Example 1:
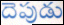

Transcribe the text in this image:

దెపుడు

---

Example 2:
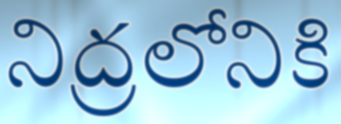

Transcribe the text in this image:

నిద్రలోనికి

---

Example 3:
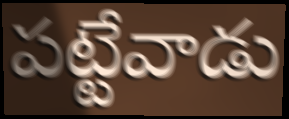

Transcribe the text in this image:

పట్టేవాడు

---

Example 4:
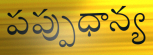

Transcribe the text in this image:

పప్పుధాన్య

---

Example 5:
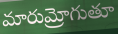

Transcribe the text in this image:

మారుమ్రోగుతూ